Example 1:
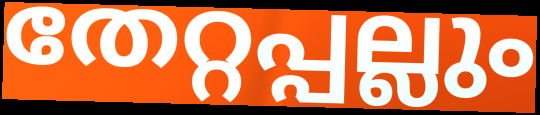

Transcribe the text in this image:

തേറ്റപ്പല്ലും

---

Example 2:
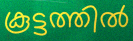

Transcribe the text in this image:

കൂട്ടത്തിൽ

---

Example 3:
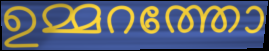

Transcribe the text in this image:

ഉമ്മറത്തോ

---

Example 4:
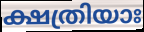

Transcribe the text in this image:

ക്ഷത്രിയാഃ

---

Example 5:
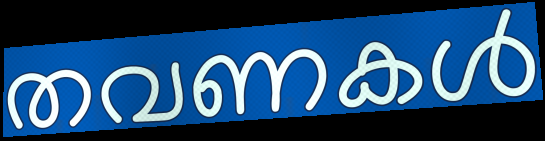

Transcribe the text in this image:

തവണകൾ